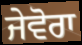
ਜੇਵੋਰਾ